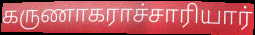
கருணாகராச்சாரியார்